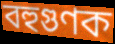
বহুগুণক